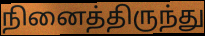
நினைத்திருந்து